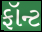
ફૉન્ટ